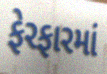
ફેરફારમાં